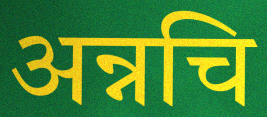
अन्नचि